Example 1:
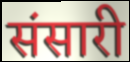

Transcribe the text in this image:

संसारी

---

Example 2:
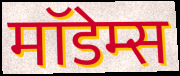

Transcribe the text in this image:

मॉडेम्स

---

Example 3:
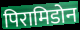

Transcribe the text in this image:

पिरामिडोन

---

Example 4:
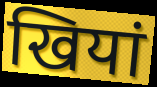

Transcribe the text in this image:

खियां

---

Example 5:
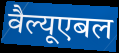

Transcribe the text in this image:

वैल्यूएबल